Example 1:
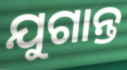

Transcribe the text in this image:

ଯୁଗାନ୍ତ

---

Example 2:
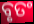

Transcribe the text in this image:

ବୃତଂ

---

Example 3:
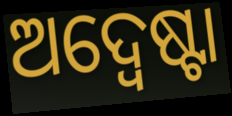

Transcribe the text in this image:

ଅଦ୍ୱେଷ୍ଟା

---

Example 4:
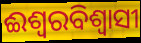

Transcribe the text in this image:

ଈଶ୍ବରବିଶ୍ବାସୀ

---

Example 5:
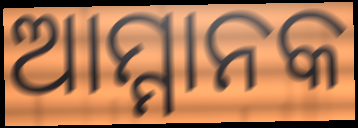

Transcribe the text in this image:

ଆମ୍ମାନକ